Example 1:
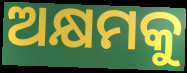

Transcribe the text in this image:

ଅକ୍ଷମକୁ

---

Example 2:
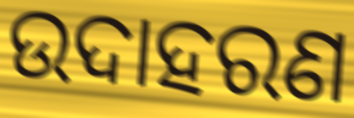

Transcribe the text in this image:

ଉଦାହରଣ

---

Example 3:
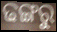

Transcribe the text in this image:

ଢଙ୍ଗରୁ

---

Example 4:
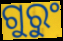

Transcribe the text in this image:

ଗୁରୁଂ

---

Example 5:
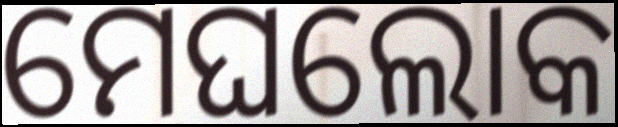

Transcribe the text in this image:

ମେଘଲୋକ